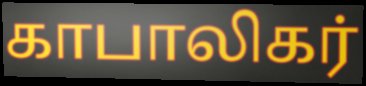
காபாலிகர்